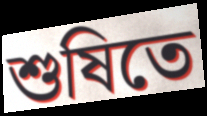
শুষিতে